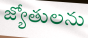
జ్యోతులను